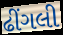
ઢીંગલી